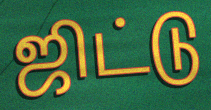
ஜிட்டு